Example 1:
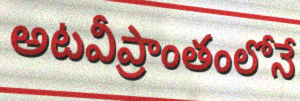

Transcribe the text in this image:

అటవీప్రాంతంలోనే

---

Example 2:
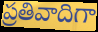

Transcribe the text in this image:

ప్రతివాదిగా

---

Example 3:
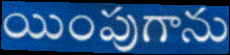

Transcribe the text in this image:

యింపుగాను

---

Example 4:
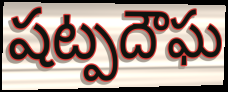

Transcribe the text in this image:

షట్పదౌఘ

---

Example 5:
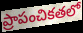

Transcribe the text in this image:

ప్రాపంచికతలో